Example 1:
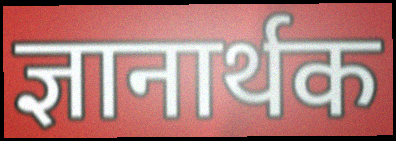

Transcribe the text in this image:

ज्ञानार्थक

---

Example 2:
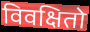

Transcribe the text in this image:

विवक्षितो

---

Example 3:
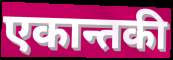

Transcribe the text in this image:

एकान्तकी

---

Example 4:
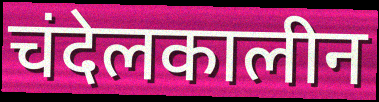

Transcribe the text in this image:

चंदेलकालीन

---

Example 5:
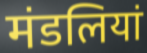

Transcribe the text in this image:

मंडलियां